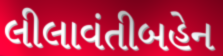
લીલાવંતીબહેન